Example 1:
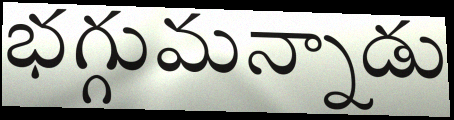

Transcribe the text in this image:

భగ్గుమన్నాడు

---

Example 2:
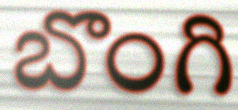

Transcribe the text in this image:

బొంగి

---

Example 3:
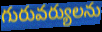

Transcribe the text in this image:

గురువర్యులను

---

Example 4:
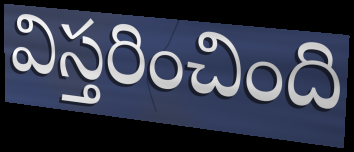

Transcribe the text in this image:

విస్తరించింది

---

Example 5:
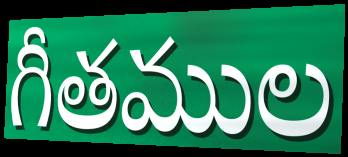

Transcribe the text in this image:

గీతముల